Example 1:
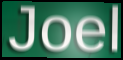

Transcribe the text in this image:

Joel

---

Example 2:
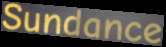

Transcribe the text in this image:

Sundance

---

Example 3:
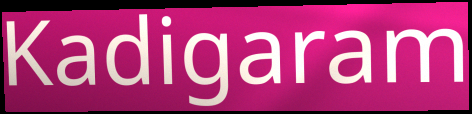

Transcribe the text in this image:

Kadigaram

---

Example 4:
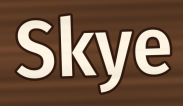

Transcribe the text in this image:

Skye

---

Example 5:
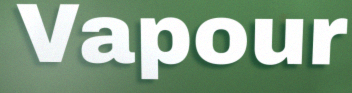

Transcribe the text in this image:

Vapour